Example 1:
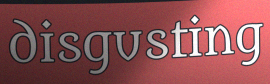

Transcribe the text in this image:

disgusting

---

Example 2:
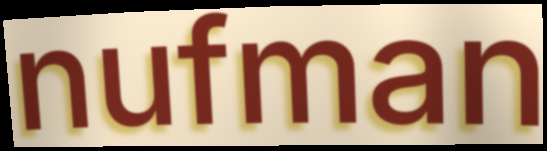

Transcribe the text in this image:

nufman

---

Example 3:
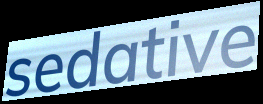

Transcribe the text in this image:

sedative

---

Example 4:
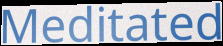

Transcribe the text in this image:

Meditated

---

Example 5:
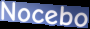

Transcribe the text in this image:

Nocebo